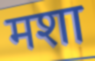
मशा